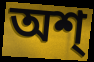
অশ্